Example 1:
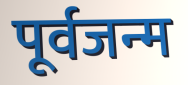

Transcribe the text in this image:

पूर्वजन्म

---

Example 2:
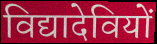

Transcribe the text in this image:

विद्यादेवियों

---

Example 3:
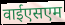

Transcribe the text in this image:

वाईएसएम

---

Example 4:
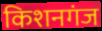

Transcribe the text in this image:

किशनगंज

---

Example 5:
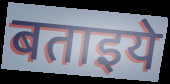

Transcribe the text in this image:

बताइये